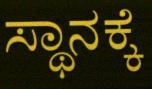
ಸ್ಥಾನಕ್ಕೆ